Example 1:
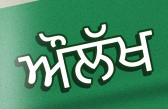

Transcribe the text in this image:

ਔਲੱਖ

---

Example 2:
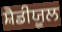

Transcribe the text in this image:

ਸ਼ੈਡੀਯੂਲ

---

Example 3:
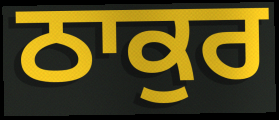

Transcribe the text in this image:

ਠਾਕੁਰ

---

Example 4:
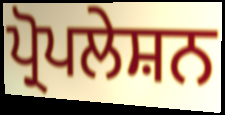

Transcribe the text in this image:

ਪ੍ਰੋਪਲੇਸ਼ਨ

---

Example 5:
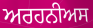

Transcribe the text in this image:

ਅਰਹਨੀਅਸ